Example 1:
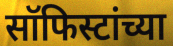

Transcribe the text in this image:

सॉफिस्टांच्या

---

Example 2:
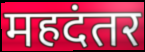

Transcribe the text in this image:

महदंतर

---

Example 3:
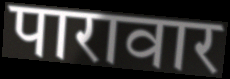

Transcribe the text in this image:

पारावार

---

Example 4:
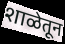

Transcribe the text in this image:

शाळेतून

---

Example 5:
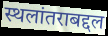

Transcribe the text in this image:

स्थलांतराबद्दल